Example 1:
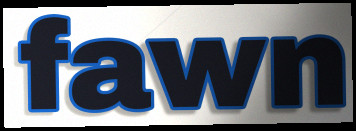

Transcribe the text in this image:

fawn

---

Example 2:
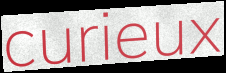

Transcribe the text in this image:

curieux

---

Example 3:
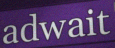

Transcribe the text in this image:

adwait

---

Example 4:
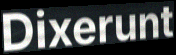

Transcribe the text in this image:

Dixerunt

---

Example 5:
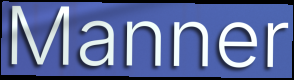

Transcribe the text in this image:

Manner